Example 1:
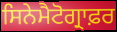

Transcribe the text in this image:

ਸਿਨੇਮੈਟੋਗ੍ਰਾਫ਼ਰ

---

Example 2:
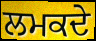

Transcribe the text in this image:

ਲਮਕਦੇ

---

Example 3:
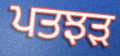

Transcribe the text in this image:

ਪਤਝਡ਼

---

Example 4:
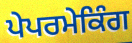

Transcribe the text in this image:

ਪੇਪਰਮੇਕਿੰਗ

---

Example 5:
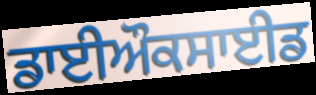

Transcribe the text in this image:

ਡਾਈਔਕਸਾਈਡ